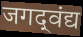
जगद्‌वंद्य